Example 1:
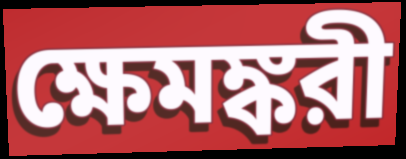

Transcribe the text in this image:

ক্ষেমঙ্করী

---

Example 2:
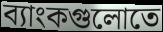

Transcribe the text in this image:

ব্যাংকগুলোতে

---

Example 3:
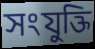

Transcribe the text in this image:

সংযুক্তি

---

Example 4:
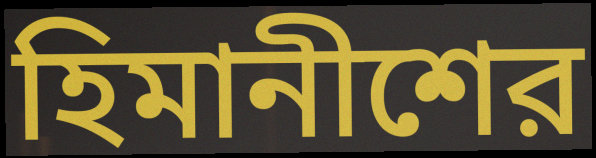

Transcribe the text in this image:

হিমানীশের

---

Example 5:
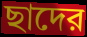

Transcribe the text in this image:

ছাদের